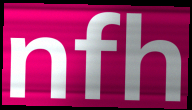
nfh